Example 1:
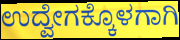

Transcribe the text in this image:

ಉದ್ವೇಗಕ್ಕೊಳಗಾಗಿ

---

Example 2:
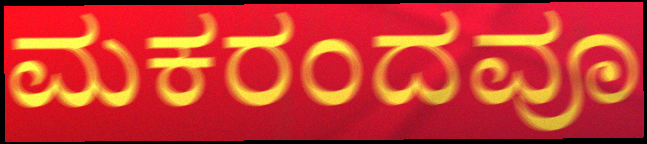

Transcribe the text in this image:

ಮಕರಂದವೂ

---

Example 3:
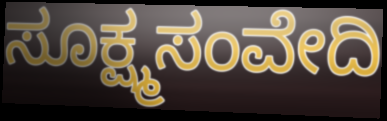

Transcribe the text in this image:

ಸೂಕ್ಷ್ಮಸಂವೇದಿ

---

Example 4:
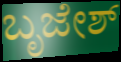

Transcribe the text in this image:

ಬೃಜೇಶ್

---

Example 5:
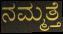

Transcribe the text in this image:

ನಮ್ಮತ್ತೆ